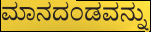
ಮಾನದಂಡವನ್ನು